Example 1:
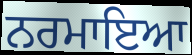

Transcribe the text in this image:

ਨਰਮਾਇਆ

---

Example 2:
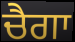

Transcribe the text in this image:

ਚੈਗਾ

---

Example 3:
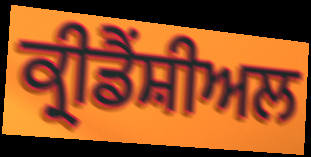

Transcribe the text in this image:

ਕ੍ਰੀਡੈਂਸ਼ੀਅਲ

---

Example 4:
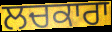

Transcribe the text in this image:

ਲਚਕਾਰਾ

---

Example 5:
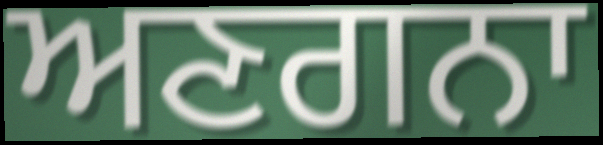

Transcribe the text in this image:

ਅਣਗਨਾ